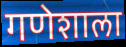
गणेशाला